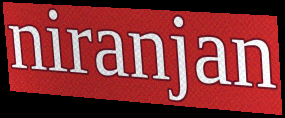
niranjan